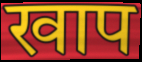
खाप